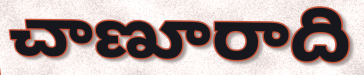
చాణూరాది